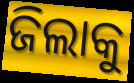
ଜିଲାକୁ